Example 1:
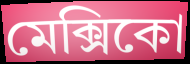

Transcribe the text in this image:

মেক্সিকো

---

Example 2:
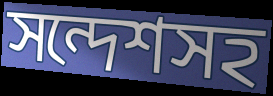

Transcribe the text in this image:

সন্দেশসহ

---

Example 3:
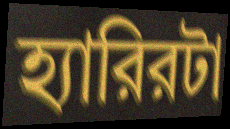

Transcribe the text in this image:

হ্যারিরটা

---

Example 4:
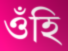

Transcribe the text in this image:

ওঁহি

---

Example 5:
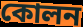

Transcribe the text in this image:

কোলন